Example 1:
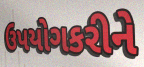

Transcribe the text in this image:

ઉપયોગકરીને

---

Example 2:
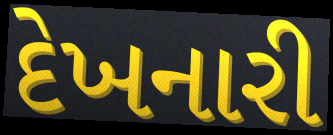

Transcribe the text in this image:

દેખનારી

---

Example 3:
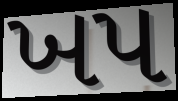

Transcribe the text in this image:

ખપ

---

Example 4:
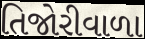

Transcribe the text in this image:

તિજોરીવાળા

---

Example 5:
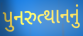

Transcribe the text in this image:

પુનરુત્થાનનું